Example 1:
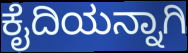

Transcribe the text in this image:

ಕೈದಿಯನ್ನಾಗಿ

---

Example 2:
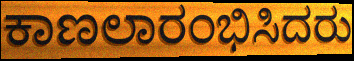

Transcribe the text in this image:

ಕಾಣಲಾರಂಭಿಸಿದರು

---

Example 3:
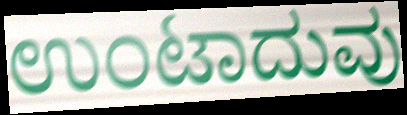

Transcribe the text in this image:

ಉಂಟಾದುವು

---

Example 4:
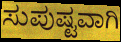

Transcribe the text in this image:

ಸುಪುಷ್ಟವಾಗಿ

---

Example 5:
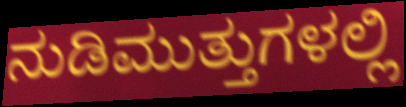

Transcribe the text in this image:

ನುಡಿಮುತ್ತುಗಳಲ್ಲಿ